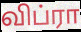
விப்ரா